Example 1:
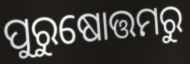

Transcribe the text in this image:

ପୁରୁଷୋତ୍ତମରୁ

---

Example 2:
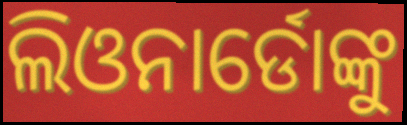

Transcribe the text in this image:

ଲିଓନାର୍ଡୋଙ୍କୁ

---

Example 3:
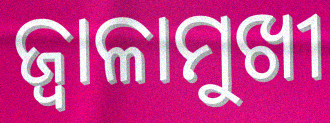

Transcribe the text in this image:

ଜ୍ୱାଳାମୁଖୀ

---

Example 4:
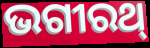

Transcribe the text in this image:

ଭଗୀରଥ୍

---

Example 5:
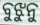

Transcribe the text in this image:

ବୁଝୁନୁ